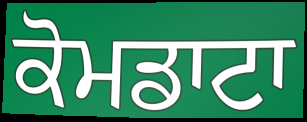
ਕੋਮਡਾਟਾ